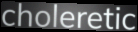
choleretic